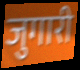
जुगारी